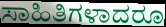
ಸಾಹಿತಿಗಳಾದರೂ